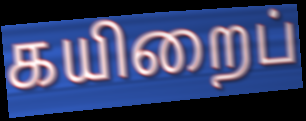
கயிறைப்